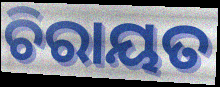
ଚିରାୟତ